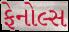
ફેનોલ્સ